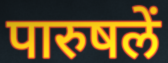
पारुषलें